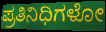
ಪ್ರತಿನಿಧಿಗಳೋ